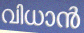
വിധാൻ